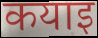
कयाइ